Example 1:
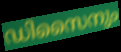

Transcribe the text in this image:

ഡിസൈനും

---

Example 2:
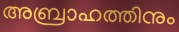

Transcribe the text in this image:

അബ്രാഹത്തിനും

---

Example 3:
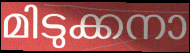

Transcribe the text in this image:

മിടുക്കനാ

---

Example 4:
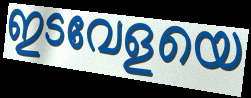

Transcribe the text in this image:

ഇടവേളയെ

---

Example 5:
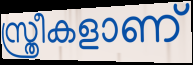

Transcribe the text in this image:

സ്ത്രീകളാണ്